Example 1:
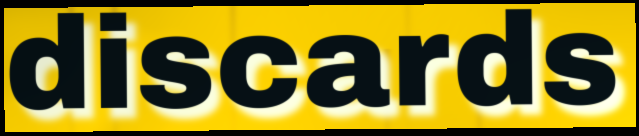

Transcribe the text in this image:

discards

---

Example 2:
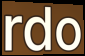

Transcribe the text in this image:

rdo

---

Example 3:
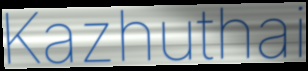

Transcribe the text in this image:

Kazhuthai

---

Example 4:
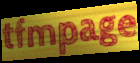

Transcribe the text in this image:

tfmpage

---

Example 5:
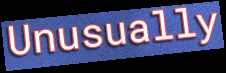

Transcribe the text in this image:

Unusually